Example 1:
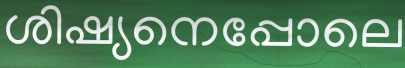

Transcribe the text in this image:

ശിഷ്യനെപ്പോലെ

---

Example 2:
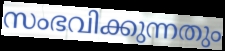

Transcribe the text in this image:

സംഭവിക്കുന്നതും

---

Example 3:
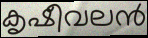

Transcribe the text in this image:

കൃഷീവലൻ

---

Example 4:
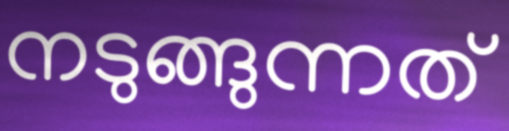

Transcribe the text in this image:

നടുങ്ങുന്നത്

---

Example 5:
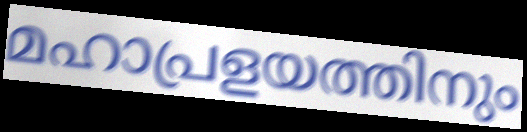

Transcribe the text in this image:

മഹാപ്രളയത്തിനും